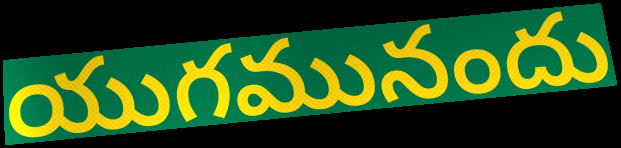
యుగమునందు